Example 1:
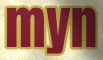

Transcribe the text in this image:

myn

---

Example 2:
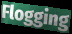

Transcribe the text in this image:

Flogging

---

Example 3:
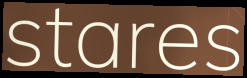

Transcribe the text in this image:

stares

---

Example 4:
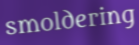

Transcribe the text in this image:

smoldering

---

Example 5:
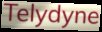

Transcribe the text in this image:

Telydyne